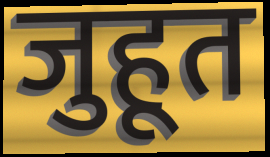
जुहूत